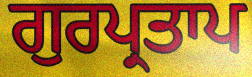
ਗੁਰਪ੍ਰਤਾਪ